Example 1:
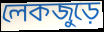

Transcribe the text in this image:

লেকজুড়ে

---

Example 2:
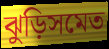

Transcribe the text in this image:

ঝুড়িসমেত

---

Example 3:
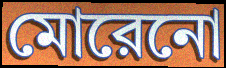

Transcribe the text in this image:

মোরেনো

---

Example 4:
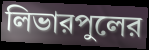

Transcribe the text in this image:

লিভারপুলের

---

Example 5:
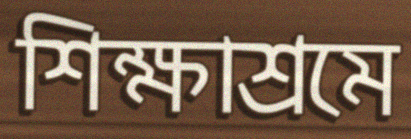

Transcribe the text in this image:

শিক্ষাশ্রমে